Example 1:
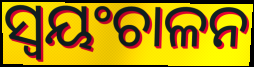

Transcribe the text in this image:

ସ୍ବୟଂଚାଳନ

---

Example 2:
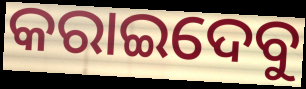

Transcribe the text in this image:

କରାଇଦେବୁ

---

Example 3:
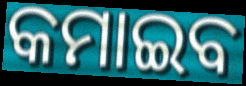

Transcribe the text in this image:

କମାଇବ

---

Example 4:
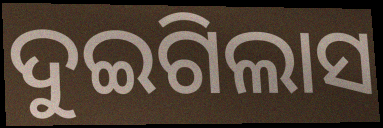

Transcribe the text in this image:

ଦୁଇଗିଲାସ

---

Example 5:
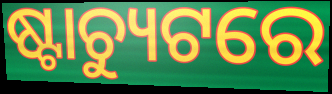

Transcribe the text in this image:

ଷ୍ଟାଚ୍ୟୁଟରେ